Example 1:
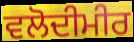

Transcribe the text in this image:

ਵਲੋਦੀਮੀਰ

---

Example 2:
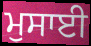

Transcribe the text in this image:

ਮੁਸਾਈ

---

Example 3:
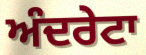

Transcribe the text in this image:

ਅੰਦਰੇਟਾ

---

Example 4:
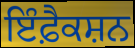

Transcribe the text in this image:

ਇੰਫ਼ੈਕਸ਼ਨ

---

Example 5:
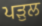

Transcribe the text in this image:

ਪੜੁਲ